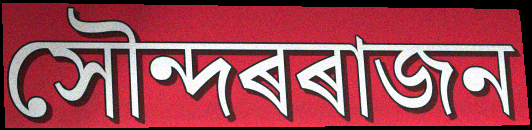
সৌন্দৰৰাজন